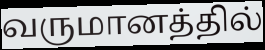
வருமானத்தில்